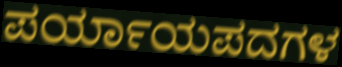
ಪರ್ಯಾಯಪದಗಳ